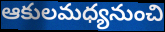
ఆకులమధ్యనుంచి